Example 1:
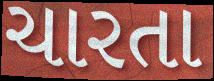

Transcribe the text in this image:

ચારતા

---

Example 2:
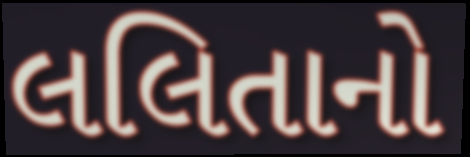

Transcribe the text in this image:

લલિતાનો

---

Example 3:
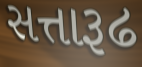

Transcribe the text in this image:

સત્તારૂઢ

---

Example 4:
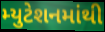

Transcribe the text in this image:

મ્યુટેશનમાંથી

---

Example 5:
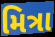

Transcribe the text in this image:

મિત્રા